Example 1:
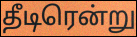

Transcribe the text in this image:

தீடிரென்று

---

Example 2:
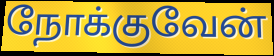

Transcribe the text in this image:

நோக்குவேன்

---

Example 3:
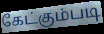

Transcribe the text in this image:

கேட்கும்படி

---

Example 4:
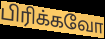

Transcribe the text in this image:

பிரிக்கவோ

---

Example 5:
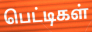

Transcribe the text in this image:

பெட்டிகள்